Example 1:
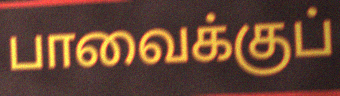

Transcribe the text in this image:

பாவைக்குப்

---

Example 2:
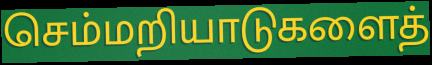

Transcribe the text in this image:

செம்மறியாடுகளைத்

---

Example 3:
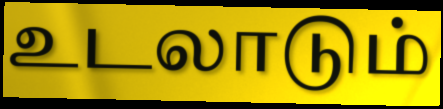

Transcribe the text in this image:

உடலாடும்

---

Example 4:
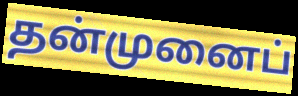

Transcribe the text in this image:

தன்முனைப்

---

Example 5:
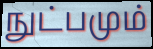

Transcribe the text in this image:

நுட்பமும்